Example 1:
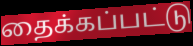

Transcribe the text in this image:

தைக்கப்பட்டு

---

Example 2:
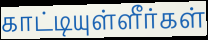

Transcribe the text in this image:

காட்டியுள்ளீர்கள்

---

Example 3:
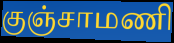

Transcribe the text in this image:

குஞ்சாமணி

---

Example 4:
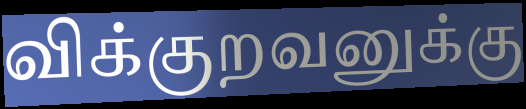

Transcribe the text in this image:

விக்குறவனுக்கு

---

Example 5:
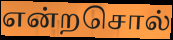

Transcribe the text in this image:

என்றசொல்